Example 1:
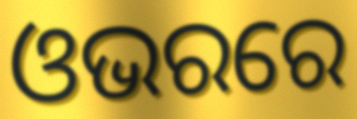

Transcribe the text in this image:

ଓଭରରେ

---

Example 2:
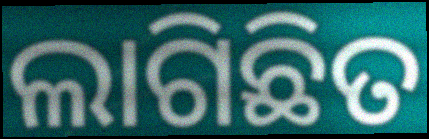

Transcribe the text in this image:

ଲାଗିଛିତ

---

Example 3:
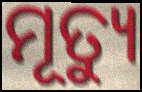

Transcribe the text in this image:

ମୂତ୍ୟୁ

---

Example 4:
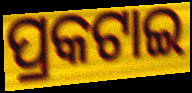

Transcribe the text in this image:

ପ୍ରକଟାଇ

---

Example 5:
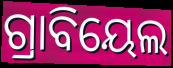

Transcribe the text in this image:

ଗ୍ରାବିୟେଲ